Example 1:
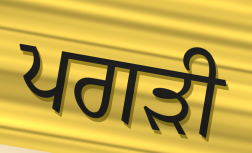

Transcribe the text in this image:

ਪਗੜੀ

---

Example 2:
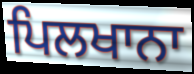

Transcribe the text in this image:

ਪਿਲਖਾਨਾ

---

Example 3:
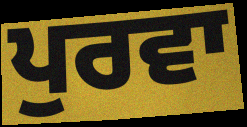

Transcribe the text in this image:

ਪੁਰਵਾ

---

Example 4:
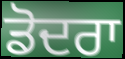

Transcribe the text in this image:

ਡੋਦਰਾ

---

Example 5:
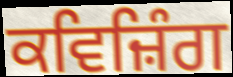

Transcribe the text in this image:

ਕਵਿਜ਼ਿੰਗ